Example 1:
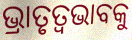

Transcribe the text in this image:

ଭ୍ରାତୃତ୍ୱଭାବକୁ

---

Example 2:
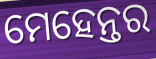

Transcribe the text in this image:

ମେହେନ୍ତର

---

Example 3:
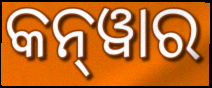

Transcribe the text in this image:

କନ୍‍ୱାର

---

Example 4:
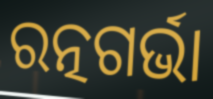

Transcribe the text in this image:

ରତ୍ନଗର୍ଭା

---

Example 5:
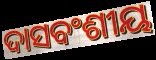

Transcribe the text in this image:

ଦାସବଂଶୀୟ